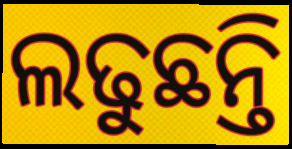
ଲଢୁଛନ୍ତି